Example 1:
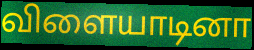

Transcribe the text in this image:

விளையாடினா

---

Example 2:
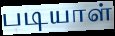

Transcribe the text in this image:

படியாள்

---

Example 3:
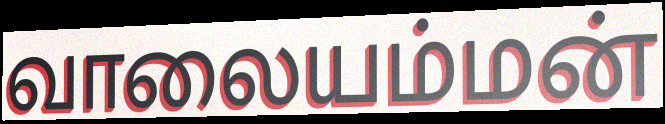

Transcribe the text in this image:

வாலையம்மன்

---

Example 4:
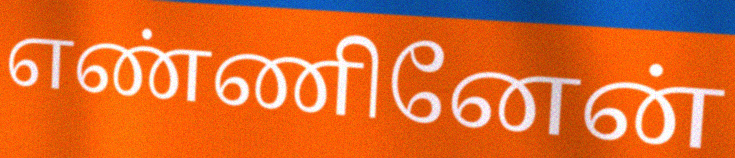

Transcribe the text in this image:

எண்ணினேன்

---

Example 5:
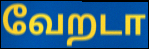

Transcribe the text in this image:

வேறடா